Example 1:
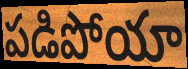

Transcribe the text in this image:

పడిపోయా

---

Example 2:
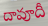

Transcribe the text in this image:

దావూదీ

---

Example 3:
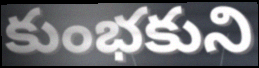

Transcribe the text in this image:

కుంభకుని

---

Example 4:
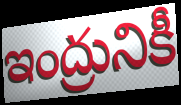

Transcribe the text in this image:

ఇంద్రునికీ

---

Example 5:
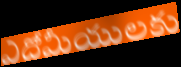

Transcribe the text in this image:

ఎదోమీయులకు